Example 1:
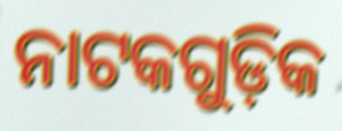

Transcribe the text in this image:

ନାଟକଗୁଡ଼ିକ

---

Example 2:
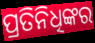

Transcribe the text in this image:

ପ୍ରତିନିଧିଙ୍କର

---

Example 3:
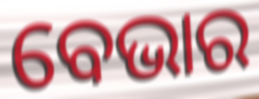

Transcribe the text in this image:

ବେଭାର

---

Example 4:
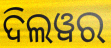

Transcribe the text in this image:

ଦିଲୱର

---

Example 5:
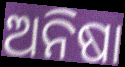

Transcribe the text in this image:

ଅନିଷା